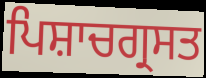
ਪਿਸ਼ਾਚਗ੍ਰਸਤ